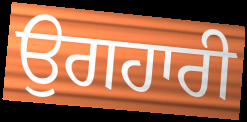
ਉਗਹਾਰੀ